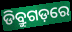
ଡିବ୍ରୁଗଡ଼ରେ